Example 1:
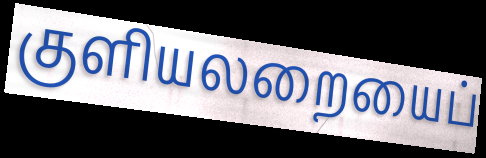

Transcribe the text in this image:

குளியலறையைப்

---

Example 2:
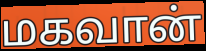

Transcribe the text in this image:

மகவான்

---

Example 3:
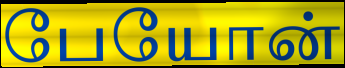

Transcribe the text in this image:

பேயோன்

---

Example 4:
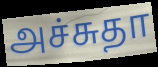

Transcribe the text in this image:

அச்சுதா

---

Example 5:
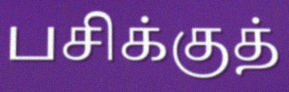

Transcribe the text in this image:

பசிக்குத்